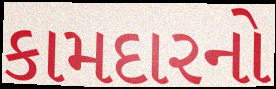
કામદારનો